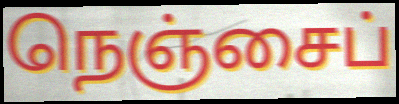
நெஞ்சைப்